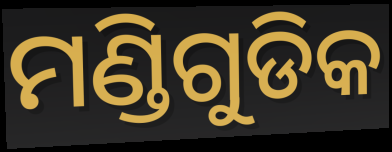
ମଣ୍ଡିଗୁଡିକ